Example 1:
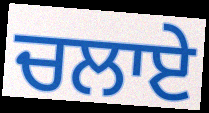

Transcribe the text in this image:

ਚਲਾਏ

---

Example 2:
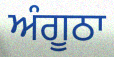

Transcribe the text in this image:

ਅੰਗੂਠਾ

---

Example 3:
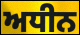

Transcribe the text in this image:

ਅਧੀਨ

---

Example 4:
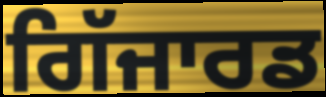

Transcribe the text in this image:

ਗਿੱਜਾਰਡ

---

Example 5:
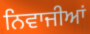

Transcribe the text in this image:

ਨਿਵਾਜੀਆਂ